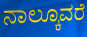
ನಾಲ್ಕೂವರೆ